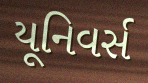
યૂનિવર્સ